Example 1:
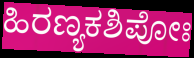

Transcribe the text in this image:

ಹಿರಣ್ಯಕಶಿಪೋಃ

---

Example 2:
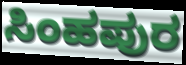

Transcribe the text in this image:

ಸಿಂಹಪುರ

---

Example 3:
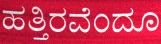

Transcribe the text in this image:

ಹತ್ತಿರವೆಂದೂ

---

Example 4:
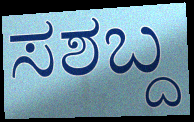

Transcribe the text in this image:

ಸಶಬ್ದ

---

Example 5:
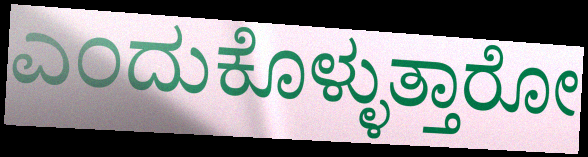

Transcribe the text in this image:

ಎಂದುಕೊಳ್ಳುತ್ತಾರೋ